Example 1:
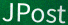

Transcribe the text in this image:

JPost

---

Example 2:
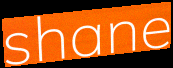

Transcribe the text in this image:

shane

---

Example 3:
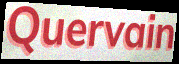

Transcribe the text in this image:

Quervain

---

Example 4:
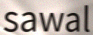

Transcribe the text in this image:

sawal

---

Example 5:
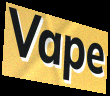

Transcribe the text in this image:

Vape